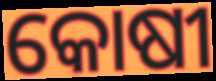
କୋଷୀ